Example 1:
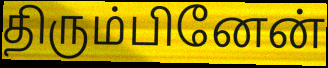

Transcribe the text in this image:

திரும்பினேன்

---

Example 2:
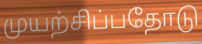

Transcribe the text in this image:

முயற்சிப்பதோடு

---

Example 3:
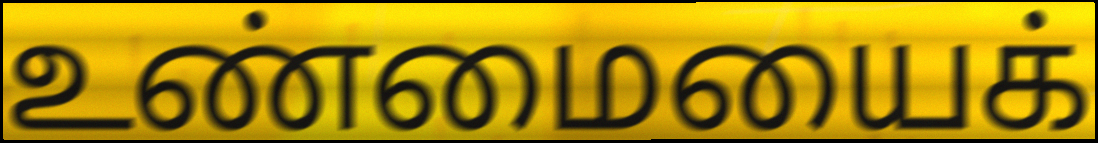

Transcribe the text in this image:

உண்மையைக்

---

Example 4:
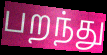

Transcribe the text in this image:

பறந்து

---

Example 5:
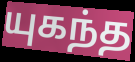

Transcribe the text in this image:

யுகந்த